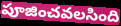
పూజించవలసింది